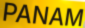
PANAM